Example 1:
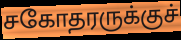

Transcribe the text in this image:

சகோதரருக்குச்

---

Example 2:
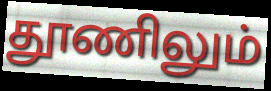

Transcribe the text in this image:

தூணிலும்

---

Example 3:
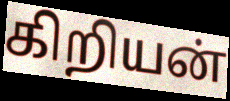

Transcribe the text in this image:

கிறியன்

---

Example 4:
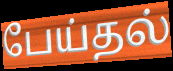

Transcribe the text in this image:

பேய்தல்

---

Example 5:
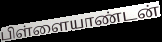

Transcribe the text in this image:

பிள்ளையாண்டன்